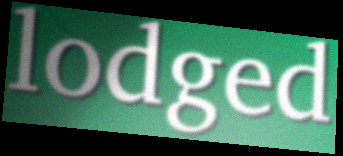
lodged